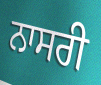
ਨਾਸਰੀ